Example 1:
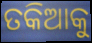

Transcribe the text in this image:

ତକିଆକୁ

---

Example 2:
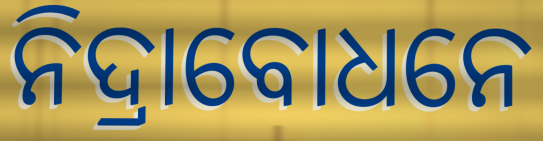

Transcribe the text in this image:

ନିଦ୍ରାବୋଧନେ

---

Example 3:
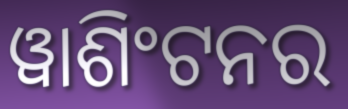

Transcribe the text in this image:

ୱାଶିଂଟନର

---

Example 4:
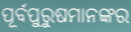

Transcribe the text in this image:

ପୂର୍ବପୁରୁଷମାନଙ୍କର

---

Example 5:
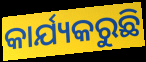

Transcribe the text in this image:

କାର୍ଯ୍ୟକରୁଛି